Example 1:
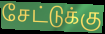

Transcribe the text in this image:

சேட்டுக்கு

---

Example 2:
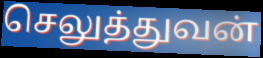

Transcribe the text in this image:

செலுத்துவன்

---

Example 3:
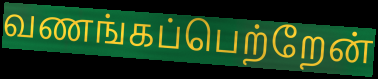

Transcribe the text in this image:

வணங்கப்பெற்றேன்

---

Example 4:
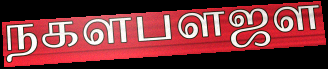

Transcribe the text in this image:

நகளபளஜள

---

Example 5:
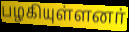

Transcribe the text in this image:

பழகியுள்ளனர்